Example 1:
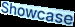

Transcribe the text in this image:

Showcase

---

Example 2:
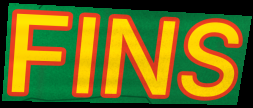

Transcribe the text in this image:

FINS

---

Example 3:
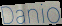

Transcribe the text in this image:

Danio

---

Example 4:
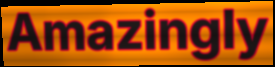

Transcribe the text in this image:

Amazingly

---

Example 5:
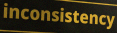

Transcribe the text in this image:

inconsistency